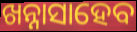
ଖନ୍ନାସାହେବ